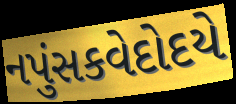
નપુંસકવેદોદયે